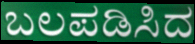
ಬಲಪಡಿಸಿದ